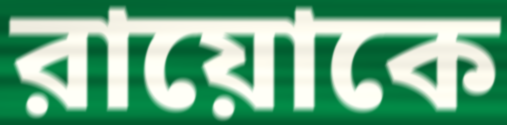
রায়োকে